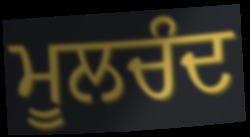
ਮੂਲਚੰਦ